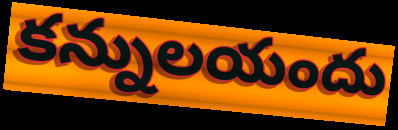
కన్నులయందు